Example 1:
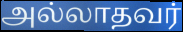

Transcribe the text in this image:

அல்லாதவர்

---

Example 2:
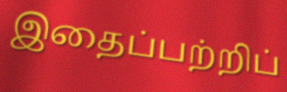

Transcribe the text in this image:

இதைப்பற்றிப்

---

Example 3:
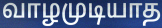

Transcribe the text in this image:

வாழமுடியாத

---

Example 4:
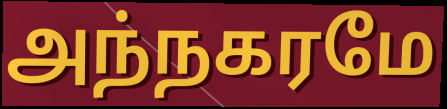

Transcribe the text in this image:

அந்நகரமே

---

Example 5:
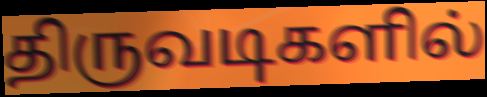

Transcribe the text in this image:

திருவடிகளில்